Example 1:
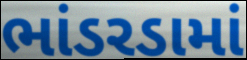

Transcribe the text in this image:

ભાંડરડામાં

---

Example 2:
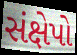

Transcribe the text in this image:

સંક્ષેપો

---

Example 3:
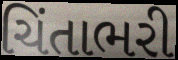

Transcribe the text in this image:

ચિંતાભરી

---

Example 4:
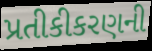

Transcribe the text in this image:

પ્રતીકીકરણની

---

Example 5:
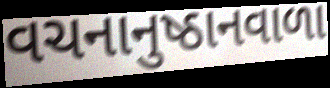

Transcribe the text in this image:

વચનાનુષ્ઠાનવાળા